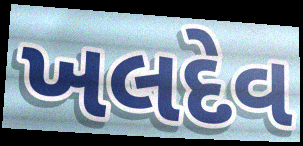
ખલદેવ